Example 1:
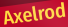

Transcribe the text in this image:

Axelrod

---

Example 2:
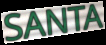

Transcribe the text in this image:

SANTA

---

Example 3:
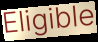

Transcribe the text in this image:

Eligible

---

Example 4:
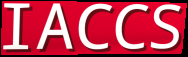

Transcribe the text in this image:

IACCS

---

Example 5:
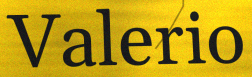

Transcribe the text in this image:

Valerio